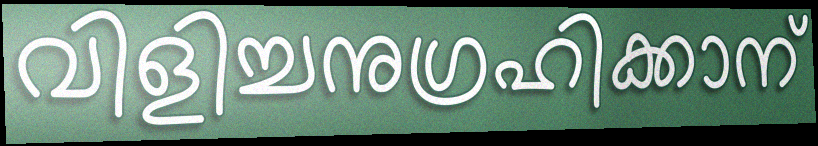
വിളിച്ചനുഗ്രഹിക്കാന്